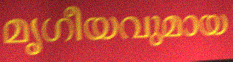
മൃഗീയവുമായ